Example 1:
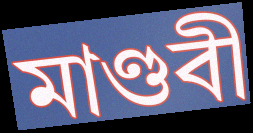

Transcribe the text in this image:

মাণ্ডবী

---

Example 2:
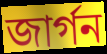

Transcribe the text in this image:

জার্গন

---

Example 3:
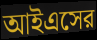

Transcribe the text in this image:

আইএসের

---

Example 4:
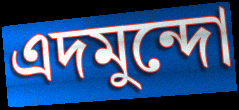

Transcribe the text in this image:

এদমুন্দো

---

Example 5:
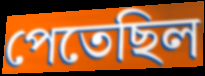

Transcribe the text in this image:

পেতেছিল